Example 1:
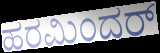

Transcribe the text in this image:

ಹರಮಿಂದರ್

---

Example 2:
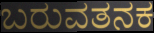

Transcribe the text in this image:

ಬರುವತನಕ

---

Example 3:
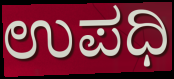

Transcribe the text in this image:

ಉಪಧಿ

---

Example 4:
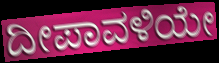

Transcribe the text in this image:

ದೀಪಾವಳಿಯೇ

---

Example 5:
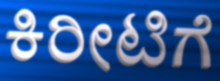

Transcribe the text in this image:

ಕಿರೀಟಿಗೆ